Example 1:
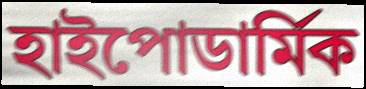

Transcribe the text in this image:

হাইপোডার্মিক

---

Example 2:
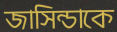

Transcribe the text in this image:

জাসিন্ডাকে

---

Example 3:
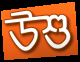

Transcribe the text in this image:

উশু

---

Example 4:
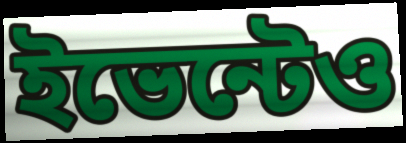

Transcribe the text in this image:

ইভেন্টেও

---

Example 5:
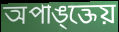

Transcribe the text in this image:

অপাঙ্‌ক্তেয়